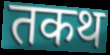
तकथ